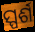
ସ୍ପର୍ଶ